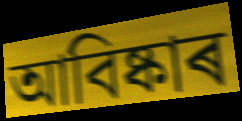
আবিষ্কাৰ